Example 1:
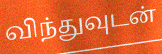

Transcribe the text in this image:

விந்துவுடன்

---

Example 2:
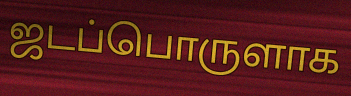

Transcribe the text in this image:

ஜடப்பொருளாக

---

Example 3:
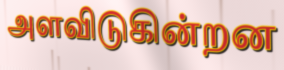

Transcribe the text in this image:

அளவிடுகின்றன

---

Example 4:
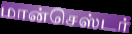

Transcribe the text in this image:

மான்செஸ்டர்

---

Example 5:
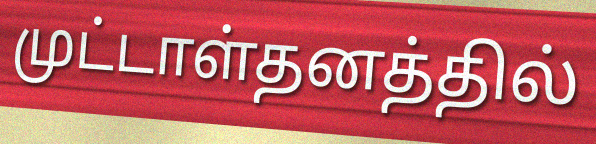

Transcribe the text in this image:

முட்டாள்தனத்தில்